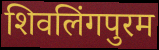
शिवलिंगपुरम